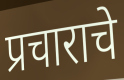
प्रचाराचे